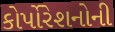
કોર્પોરેશનોની